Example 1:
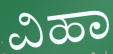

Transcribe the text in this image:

ವಿಹಾ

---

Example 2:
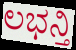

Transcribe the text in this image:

ಲಭನ್ತಿ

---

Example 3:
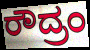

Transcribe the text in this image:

ರೌದ್ರಂ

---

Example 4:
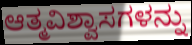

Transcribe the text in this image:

ಆತ್ಮವಿಶ್ವಾಸಗಳನ್ನು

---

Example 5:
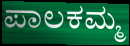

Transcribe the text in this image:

ಪಾಲಕಮ್ಮ